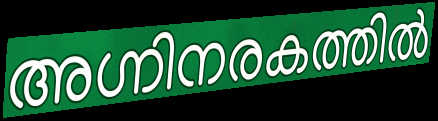
അഗ്നിനരകത്തിൽ